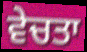
ਵੇਚਤਾ